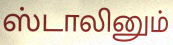
ஸ்டாலினும்